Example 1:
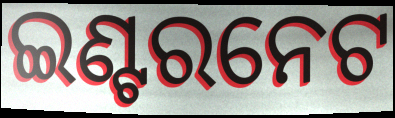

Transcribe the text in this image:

ଇଣ୍ଟରନେଟ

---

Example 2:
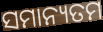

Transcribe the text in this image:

ସମାନ୍ୟତମ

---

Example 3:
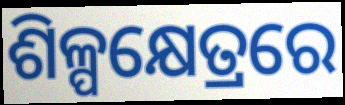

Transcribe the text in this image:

ଶିଳ୍ପକ୍ଷେତ୍ରରେ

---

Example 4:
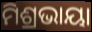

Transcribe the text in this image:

ମିଶ୍ରଭାୟା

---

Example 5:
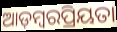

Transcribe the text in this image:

ଆଡ଼ମ୍ବରପ୍ରିୟତା